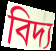
বিদ্য